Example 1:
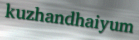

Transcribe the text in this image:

kuzhandhaiyum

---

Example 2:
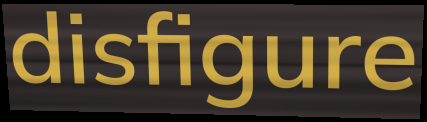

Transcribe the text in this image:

disfigure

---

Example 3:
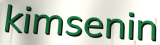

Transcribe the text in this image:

kimsenin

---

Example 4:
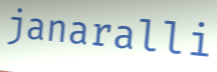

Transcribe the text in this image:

janaralli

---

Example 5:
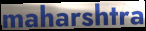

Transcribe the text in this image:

maharshtra